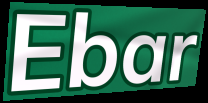
Ebar